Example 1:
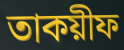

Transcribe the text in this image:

তাকয়ীফ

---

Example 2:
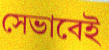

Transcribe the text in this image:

সেভাবেই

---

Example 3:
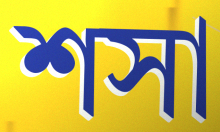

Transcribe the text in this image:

শসা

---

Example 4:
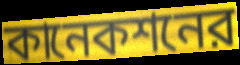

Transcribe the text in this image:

কানেকশনের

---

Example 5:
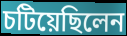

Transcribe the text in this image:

চটিয়েছিলেন